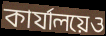
কার্যালয়েও